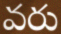
వరు